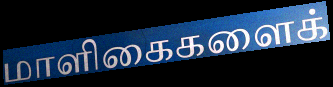
மாளிகைகளைக்